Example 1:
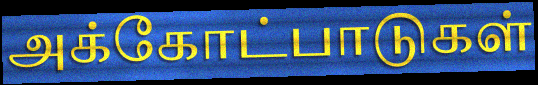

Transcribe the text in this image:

அக்கோட்பாடுகள்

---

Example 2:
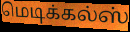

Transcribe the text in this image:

மெடிக்கல்ஸ்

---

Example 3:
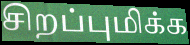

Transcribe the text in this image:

சிறப்புமிக்க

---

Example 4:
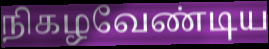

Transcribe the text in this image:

நிகழவேண்டிய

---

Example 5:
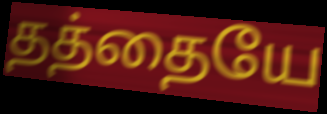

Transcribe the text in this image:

தத்தையே